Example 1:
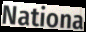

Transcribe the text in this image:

Nationa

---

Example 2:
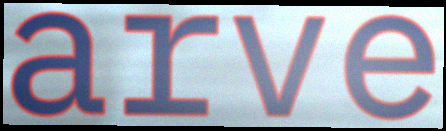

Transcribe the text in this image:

arve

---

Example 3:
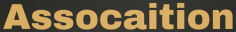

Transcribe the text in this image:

Assocaition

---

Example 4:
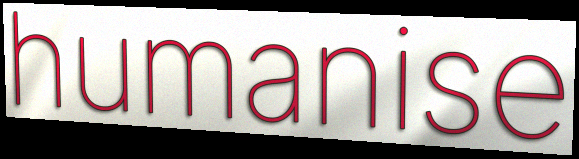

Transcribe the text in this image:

humanise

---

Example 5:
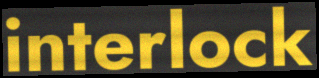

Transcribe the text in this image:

interlock